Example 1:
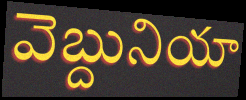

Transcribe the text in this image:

వెబ్దునియా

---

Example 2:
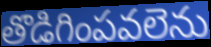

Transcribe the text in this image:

తొడిగింపవలెను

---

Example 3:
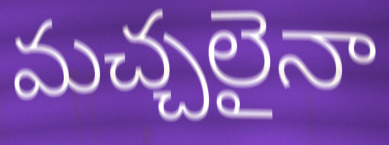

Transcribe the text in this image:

మచ్చలైనా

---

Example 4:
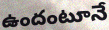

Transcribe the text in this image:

ఉందంటూనే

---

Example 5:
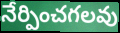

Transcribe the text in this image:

నేర్పించగలవు